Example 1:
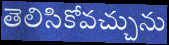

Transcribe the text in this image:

తెలిసికోవచ్చును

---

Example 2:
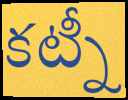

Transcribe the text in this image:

కట్నీ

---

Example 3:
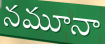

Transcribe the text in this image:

నమూనా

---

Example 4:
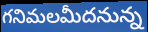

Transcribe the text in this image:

గనిమలమీదనున్న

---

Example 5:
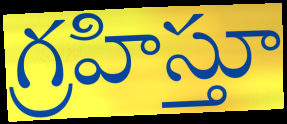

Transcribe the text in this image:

గ్రహిస్తూ